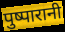
पुष्पारानी